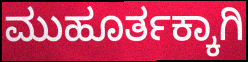
ಮುಹೂರ್ತಕ್ಕಾಗಿ